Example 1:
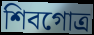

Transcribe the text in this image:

শিবগোত্র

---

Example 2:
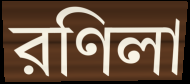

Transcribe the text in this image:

রণিলা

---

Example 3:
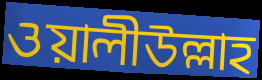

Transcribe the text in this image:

ওয়ালীউল্লাহ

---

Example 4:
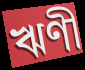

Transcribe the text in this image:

ঋণী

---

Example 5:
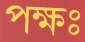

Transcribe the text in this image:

পক্ষঃ